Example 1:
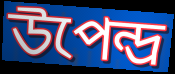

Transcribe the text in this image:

উপেন্দ্র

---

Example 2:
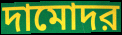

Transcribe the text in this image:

দামোদর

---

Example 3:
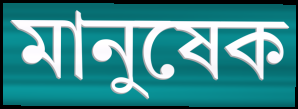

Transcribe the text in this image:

মানুষেক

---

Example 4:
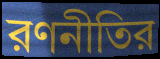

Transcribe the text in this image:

রণনীতির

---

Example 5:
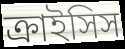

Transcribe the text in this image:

ক্রাইসিস